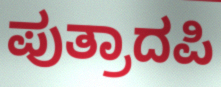
ಪುತ್ರಾದಪಿ